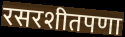
रसरशीतपणा